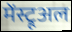
मेंस्ट्रूअल